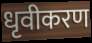
धृवीकरण